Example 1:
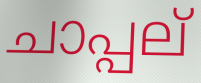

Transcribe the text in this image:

ചാപ്പല്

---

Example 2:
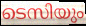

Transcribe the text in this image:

ടെസിയും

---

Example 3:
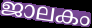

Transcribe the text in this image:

ജാലകം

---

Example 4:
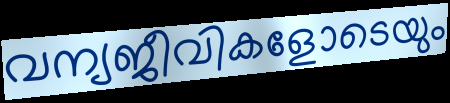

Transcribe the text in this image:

വന്യജീവികളോടെയും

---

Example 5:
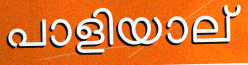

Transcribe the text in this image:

പാളിയാല്